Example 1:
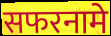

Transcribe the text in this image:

सफरनामे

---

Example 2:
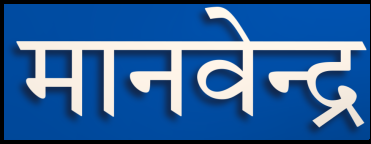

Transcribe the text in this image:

मानवेन्द्र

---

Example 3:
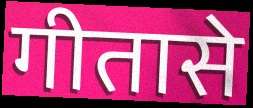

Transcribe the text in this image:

गीतासे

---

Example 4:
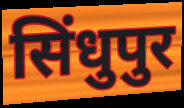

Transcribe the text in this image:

सिंधुपुर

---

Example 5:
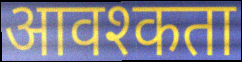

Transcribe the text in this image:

आवश्कता